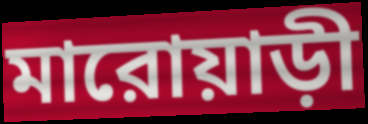
মারোয়াড়ী